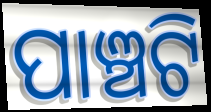
ପାଞ୍ଚଟି